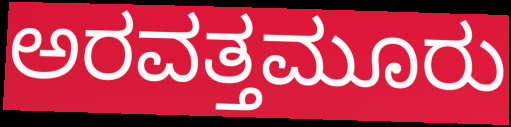
ಅರವತ್ತಮೂರು